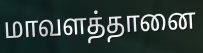
மாவளத்தானை